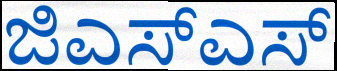
ಜಿಎಸ್ಎಸ್